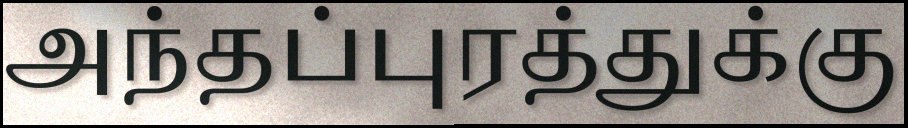
அந்தப்புரத்துக்கு